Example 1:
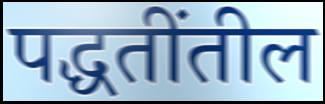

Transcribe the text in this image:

पद्धतींतील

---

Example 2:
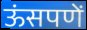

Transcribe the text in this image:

ऊंसपणें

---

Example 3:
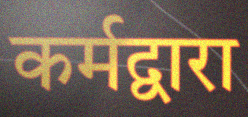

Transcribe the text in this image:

कर्मद्वारा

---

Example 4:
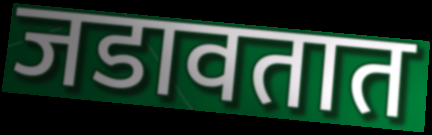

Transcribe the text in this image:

जडावतात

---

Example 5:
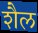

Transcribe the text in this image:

शैल